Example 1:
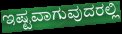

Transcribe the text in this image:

ಇಷ್ಟವಾಗುವುದರಲ್ಲಿ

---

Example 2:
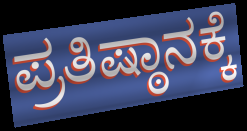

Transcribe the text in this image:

ಪ್ರತಿಷ್ಠಾನಕ್ಕೆ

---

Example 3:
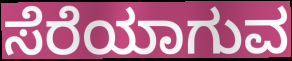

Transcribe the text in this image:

ಸೆರೆಯಾಗುವ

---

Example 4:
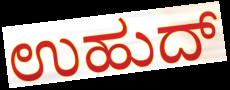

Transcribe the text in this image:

ಉಹುದ್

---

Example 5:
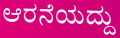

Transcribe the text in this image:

ಆರನೆಯದ್ದು